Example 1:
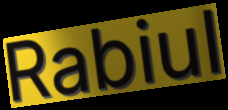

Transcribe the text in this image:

Rabiul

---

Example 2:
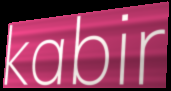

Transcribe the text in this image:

kabir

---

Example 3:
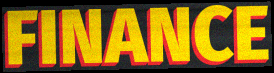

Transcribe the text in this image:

FINANCE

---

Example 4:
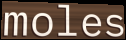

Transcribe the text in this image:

moles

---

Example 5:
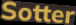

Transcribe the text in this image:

Sotter